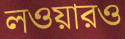
লওয়ারও